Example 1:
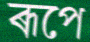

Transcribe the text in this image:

ৰূপে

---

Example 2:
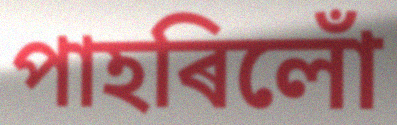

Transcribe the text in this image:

পাহৰিলোঁ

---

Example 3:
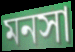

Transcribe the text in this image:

মনসা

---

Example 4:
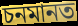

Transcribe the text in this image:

চনমানত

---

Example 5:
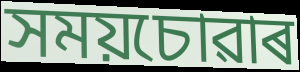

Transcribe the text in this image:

সময়চোৱাৰ